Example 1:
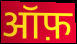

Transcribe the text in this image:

ऑफ़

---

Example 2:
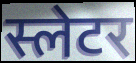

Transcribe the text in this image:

स्लेटर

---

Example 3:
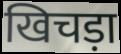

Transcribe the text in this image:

खिचड़ा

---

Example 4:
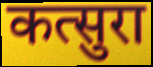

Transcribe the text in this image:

कत्सुरा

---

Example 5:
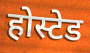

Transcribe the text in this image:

होस्टेड